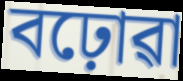
বঢ়োৱা